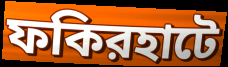
ফকিরহাটে